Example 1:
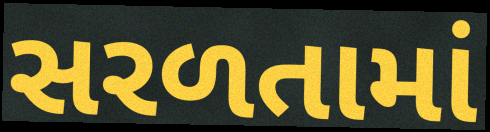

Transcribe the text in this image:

સરળતામાં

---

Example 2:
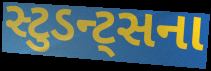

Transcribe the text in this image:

સ્ટુડન્ટ્સના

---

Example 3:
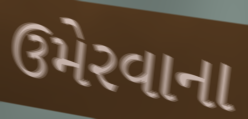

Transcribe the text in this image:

ઉમેરવાના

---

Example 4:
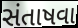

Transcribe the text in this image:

સંતાષવા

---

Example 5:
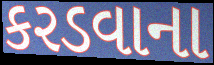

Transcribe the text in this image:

કરડવાના